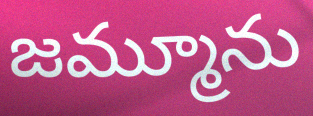
జమ్మూను